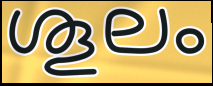
ശൂലം